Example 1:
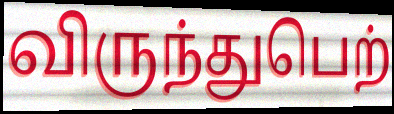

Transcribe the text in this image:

விருந்துபெற்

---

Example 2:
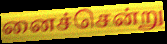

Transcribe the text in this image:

னைச்சென்று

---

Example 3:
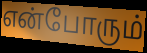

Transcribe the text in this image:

என்போரும்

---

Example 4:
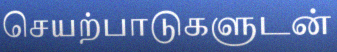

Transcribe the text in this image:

செயற்பாடுகளுடன்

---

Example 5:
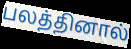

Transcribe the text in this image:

பலத்தினால்